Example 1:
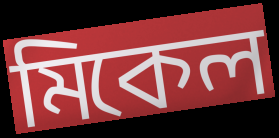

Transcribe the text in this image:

মিকেল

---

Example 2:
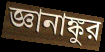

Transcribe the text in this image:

জ্ঞানাঙ্কুর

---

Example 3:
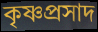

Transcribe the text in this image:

কৃষ্ণপ্রসাদ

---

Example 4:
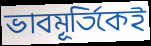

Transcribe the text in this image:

ভাবমূর্তিকেই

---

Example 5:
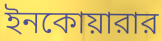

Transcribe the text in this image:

ইনকোয়ারার